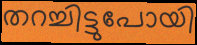
തറച്ചിട്ടുപോയി